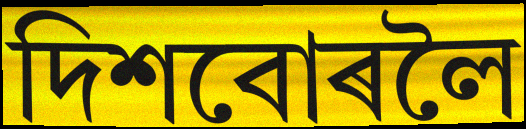
দিশবোৰলৈ